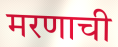
मरणाची